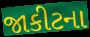
જાકીટના